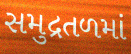
સમુદ્રતળમાં